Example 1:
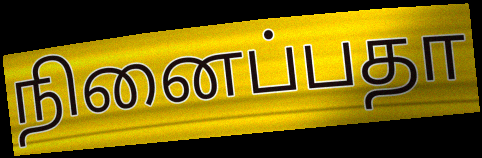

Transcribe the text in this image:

நினைப்பதா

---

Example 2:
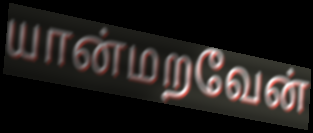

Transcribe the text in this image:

யான்மறவேன்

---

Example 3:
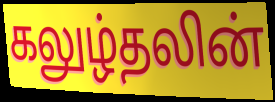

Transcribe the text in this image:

கலுழ்தலின்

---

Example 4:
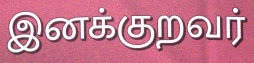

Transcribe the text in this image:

இனக்குறவர்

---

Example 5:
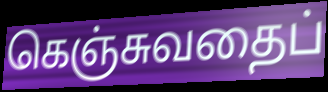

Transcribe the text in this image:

கெஞ்சுவதைப்